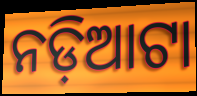
ନଡ଼ିଆଟା